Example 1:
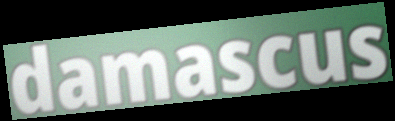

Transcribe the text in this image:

damascus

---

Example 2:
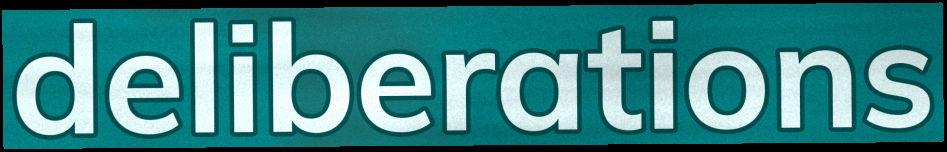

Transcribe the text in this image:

deliberations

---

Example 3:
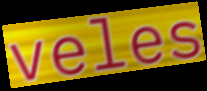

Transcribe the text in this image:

veles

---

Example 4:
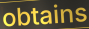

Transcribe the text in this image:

obtains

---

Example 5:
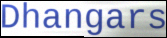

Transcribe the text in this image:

Dhangars